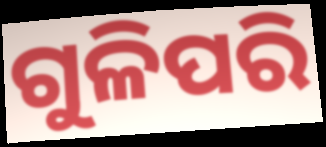
ଗୁଳିପରି